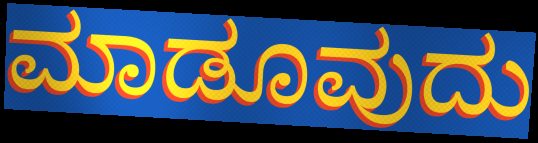
ಮಾಡೂವುದು